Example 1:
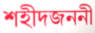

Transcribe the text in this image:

শহীদজননী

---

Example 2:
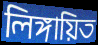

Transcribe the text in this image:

লিঙ্গায়িত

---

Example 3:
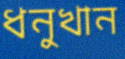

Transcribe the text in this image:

ধনুখান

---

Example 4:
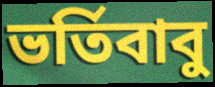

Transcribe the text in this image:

ভর্তিবাবু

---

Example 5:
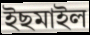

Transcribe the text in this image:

ইছমাইল